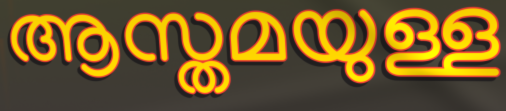
ആസ്തമയുള്ള